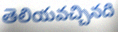
తెలియవచ్చినది